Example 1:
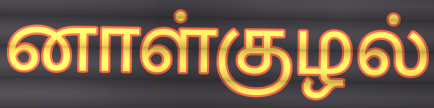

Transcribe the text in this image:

னாள்குழல்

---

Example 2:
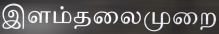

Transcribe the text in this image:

இளம்தலைமுறை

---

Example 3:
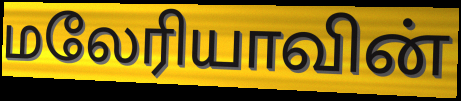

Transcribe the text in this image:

மலேரியாவின்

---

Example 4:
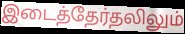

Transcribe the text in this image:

இடைத்தேர்தலிலும்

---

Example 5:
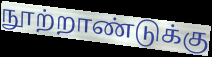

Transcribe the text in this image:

நூற்றாண்டுக்கு